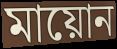
মায়োন